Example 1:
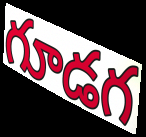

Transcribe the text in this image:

గూడగ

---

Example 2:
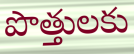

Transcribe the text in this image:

పొత్తులకు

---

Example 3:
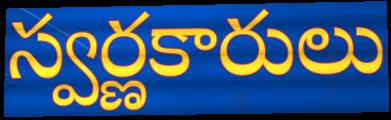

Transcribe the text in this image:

స్వర్ణకారులు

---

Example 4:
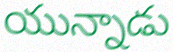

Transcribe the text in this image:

యున్నాడు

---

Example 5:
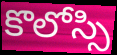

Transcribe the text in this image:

కొలోస్సి